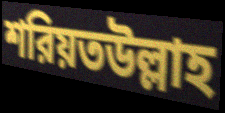
শরিয়তউল্লাহ